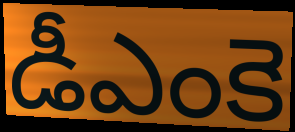
డీఎంకె